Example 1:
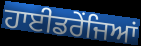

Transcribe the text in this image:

ਹਾਈਡਰੇਂਜਿਆਂ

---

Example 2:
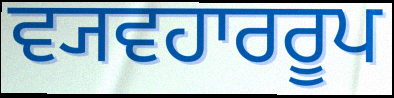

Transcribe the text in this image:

ਵ੍ਯਵਹਾਰਰੂਪ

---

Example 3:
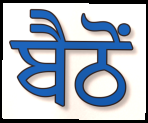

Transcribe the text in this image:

ਬੈਠੋਂ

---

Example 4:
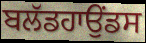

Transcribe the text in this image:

ਬਲੱਡਹਾਉਂਡਸ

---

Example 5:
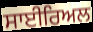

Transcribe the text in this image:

ਸਾਈਰਿਅਲ